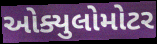
ઓક્યુલોમોટર